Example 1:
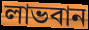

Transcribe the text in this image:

লাভবান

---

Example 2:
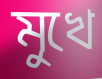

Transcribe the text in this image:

মুখে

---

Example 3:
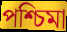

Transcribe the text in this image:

পশ্চিমা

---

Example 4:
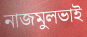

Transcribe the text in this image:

নাজমুলভাই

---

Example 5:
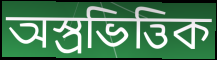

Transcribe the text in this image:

অস্ত্রভিত্তিক